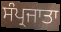
ਸੰਪ੍ਰਜਾਤਾ